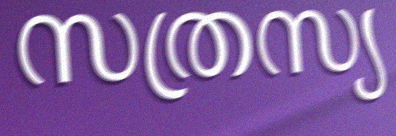
സത്രസ്യ